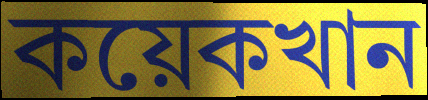
কয়েকখান